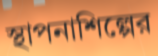
স্থাপনাশিল্পের